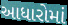
આધારોમાં